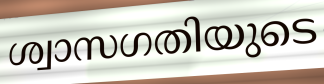
ശ്വാസഗതിയുടെ